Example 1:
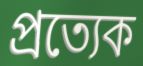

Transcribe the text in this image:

প্রত্যেক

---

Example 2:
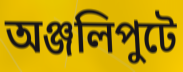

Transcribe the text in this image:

অঞ্জলিপুটে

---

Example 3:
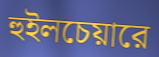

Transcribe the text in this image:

হুইলচেয়ারে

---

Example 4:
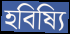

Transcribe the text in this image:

হবিষ্যি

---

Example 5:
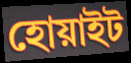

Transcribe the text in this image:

হোয়াইট